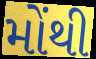
મોંથી